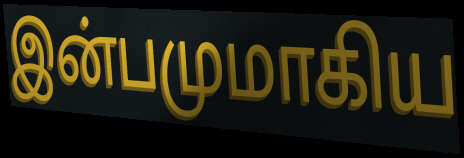
இன்பமுமாகிய